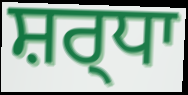
ਸ਼ਰ੍ਧਾ